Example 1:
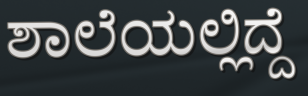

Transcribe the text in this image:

ಶಾಲೆಯಲ್ಲಿದ್ದೆ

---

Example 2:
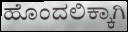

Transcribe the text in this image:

ಹೊಂದಲಿಕ್ಕಾಗಿ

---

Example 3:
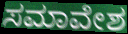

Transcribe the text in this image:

ಸಮಾವೇಶ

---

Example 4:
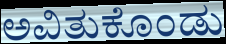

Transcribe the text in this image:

ಅವಿತುಕೊಂಡು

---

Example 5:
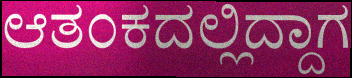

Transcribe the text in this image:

ಆತಂಕದಲ್ಲಿದ್ದಾಗ